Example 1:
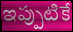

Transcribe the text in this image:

ఇప్పుటికే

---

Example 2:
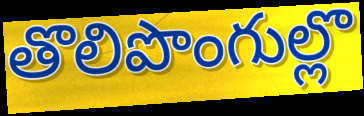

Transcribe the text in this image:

తొలిపొంగుల్లొ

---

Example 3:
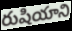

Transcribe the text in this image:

రుషియాని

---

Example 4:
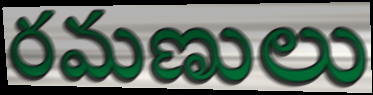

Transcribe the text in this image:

రమణులు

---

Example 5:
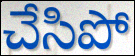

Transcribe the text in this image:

చేసిపో